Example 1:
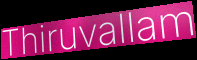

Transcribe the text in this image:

Thiruvallam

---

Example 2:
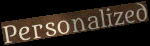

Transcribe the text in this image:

Personalized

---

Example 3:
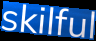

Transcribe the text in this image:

skilful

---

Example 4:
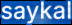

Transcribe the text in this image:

saykal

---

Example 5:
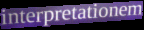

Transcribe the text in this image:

interpretationem